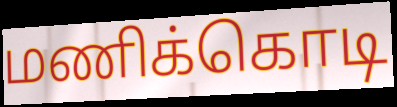
மணிக்கொடி